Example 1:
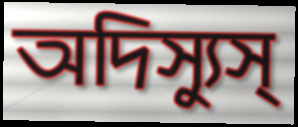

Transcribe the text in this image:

অদিস্যুস্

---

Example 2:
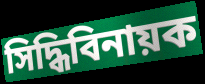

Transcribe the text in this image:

সিদ্ধিবিনায়ক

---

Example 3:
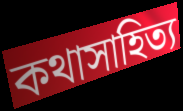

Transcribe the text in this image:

কথাসাহিত্য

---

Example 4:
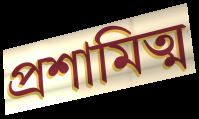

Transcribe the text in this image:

প্রশামিত্ম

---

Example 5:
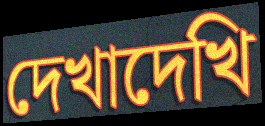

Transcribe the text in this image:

দেখাদেখি